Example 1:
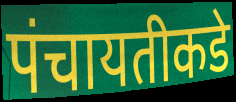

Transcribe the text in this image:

पंचायतीकडे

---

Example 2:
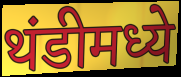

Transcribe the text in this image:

थंडीमध्ये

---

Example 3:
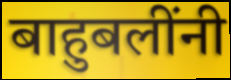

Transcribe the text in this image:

बाहुबलींनी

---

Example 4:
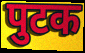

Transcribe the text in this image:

पुटक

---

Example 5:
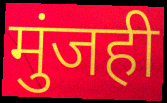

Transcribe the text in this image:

मुंजही